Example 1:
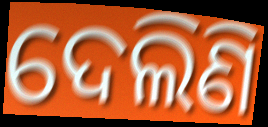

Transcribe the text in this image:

ଦେଲିଣି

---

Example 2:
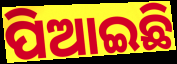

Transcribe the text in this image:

ପିଆଇଛି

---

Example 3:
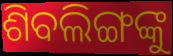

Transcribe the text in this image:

ଶିବଲିଙ୍ଗଙ୍କୁ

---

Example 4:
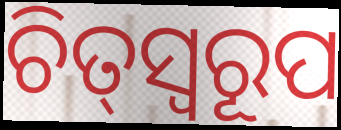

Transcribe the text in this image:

ଚିତ୍‌ସ୍ୱରୂପ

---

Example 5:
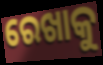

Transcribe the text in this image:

ରେଖାକୁ